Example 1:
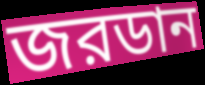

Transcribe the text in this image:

জরডান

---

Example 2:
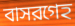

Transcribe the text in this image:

বাসরগেহ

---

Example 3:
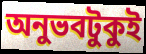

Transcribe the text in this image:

অনুভবটুকুই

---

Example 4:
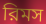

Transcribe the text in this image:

রিমস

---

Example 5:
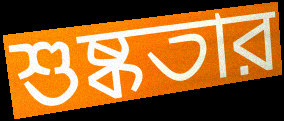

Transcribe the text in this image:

শুষ্কতার